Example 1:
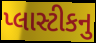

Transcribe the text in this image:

પ્લાસ્ટીકનુ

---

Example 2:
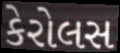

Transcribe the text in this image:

કેરોલસ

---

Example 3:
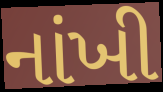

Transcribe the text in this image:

નાંખી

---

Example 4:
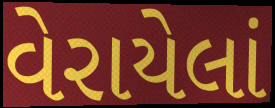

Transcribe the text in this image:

વેરાયેલાં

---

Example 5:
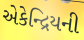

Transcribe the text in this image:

એકેન્દ્રિયની